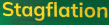
Stagflation